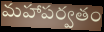
మహాపర్వతం